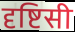
दृष्टिसी